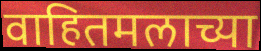
वाहितमलाच्या